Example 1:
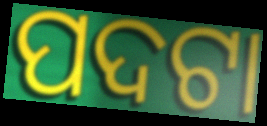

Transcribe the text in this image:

ପଦଟା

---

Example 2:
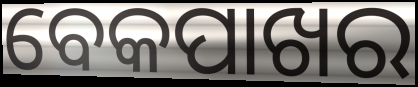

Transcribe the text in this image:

ବେକପାଖର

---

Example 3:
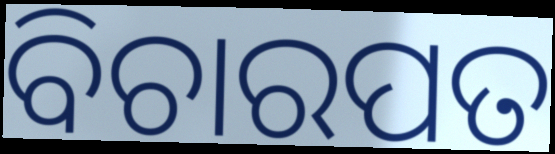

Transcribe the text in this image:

ବିଚାରପତ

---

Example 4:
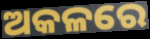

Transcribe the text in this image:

ଅକଳରେ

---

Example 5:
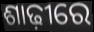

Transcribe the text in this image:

ଶାଢ଼ୀରେ